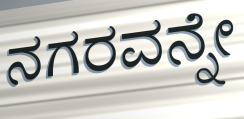
ನಗರವನ್ನೇ